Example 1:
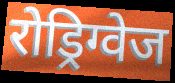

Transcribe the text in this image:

रोड्रिग्वेज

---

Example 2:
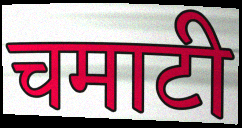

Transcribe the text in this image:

चमाटी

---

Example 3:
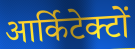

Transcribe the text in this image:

आर्किटेक्टों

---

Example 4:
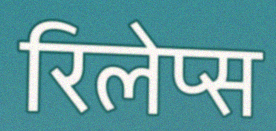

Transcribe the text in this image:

रिलेप्स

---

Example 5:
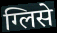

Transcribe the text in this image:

ग्लिसे